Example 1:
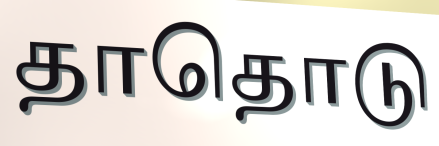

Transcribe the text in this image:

தாதொடு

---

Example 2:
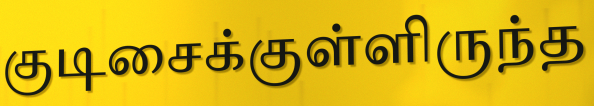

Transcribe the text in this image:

குடிசைக்குள்ளிருந்த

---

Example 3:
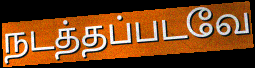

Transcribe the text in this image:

நடத்தப்படவே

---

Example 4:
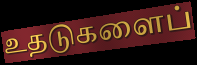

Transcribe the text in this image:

உதடுகளைப்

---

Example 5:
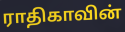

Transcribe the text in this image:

ராதிகாவின்